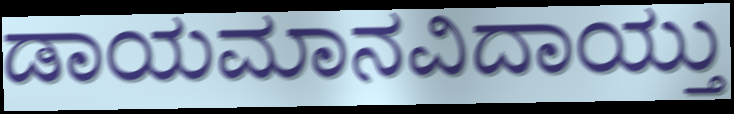
ಡಾಯಮಾನವಿದಾಯ್ತು